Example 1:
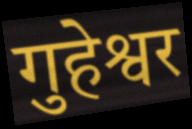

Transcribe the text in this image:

गुहेश्वर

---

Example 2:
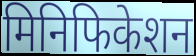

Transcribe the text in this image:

मिनिफिकेशन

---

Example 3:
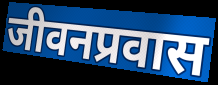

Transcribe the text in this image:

जीवनप्रवास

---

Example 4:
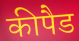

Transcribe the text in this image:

कीपैड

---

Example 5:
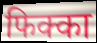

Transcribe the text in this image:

फिक्का